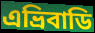
এভ্ৰিবাডি